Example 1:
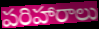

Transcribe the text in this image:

పరిహారాలు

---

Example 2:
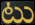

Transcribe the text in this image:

టు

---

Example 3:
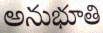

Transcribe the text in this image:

అనుభూతి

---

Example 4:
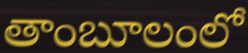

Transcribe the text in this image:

తాంబూలంలో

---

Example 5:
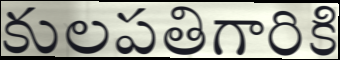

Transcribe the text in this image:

కులపతిగారికి